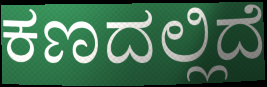
ಕಣದಲ್ಲಿದೆ